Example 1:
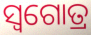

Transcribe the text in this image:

ସ୍ୱଗୋତ୍ର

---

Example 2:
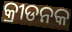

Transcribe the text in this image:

କ୍ରୀଡନକ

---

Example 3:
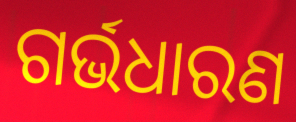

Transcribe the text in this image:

ଗର୍ଭଧାରଣ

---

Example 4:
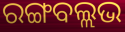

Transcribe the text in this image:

ରଙ୍ଗବଲ୍ଲଭ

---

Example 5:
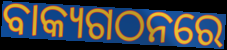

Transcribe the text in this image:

ବାକ୍ୟଗଠନରେ